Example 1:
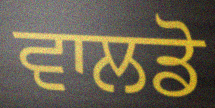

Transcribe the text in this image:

ਵਾਲਡੋ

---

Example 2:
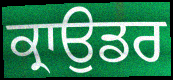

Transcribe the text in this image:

ਕ੍ਰਾਉਡਰ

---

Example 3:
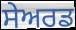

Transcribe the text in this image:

ਸੇਅਰਡ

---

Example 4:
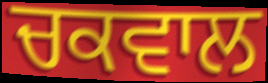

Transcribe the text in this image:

ਚਕਵਾਲ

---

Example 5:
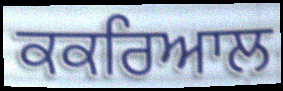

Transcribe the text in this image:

ਕਕਰਿਆਲ